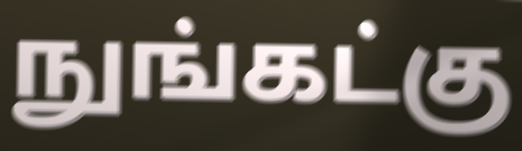
நுங்கட்கு